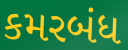
કમરબંધ